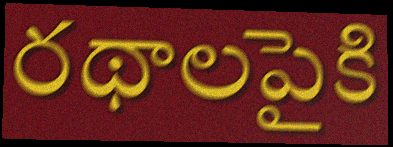
రథాలపైకి